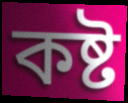
কষ্ট